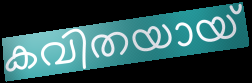
കവിതയായ്